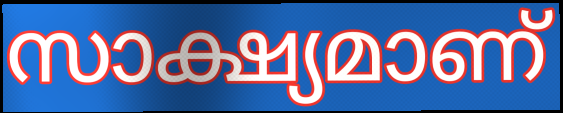
സാക്ഷ്യമാണ്